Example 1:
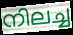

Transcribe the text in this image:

നിലച്ച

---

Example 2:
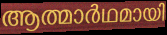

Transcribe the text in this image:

ആത്മാർഥമായി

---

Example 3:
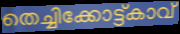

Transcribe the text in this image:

തെച്ചിക്കോട്ട്കാവ്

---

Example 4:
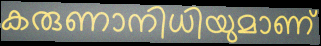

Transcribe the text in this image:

കരുണാനിധിയുമാണ്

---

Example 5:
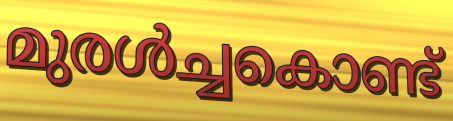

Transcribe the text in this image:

മുരൾച്ചകൊണ്ട്